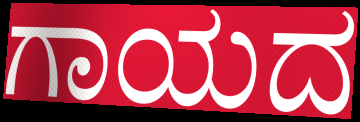
ಗಾಯದ